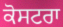
ਕੋਸਟਰਾ